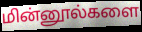
மின்னூல்களை